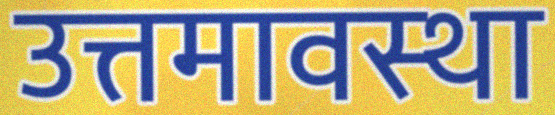
उत्तमावस्था